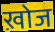
ख़ोज